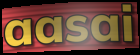
aasai